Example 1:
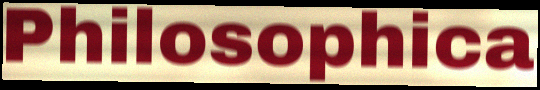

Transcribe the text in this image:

Philosophica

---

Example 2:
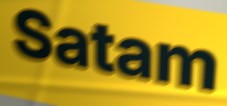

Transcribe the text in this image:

Satam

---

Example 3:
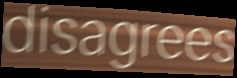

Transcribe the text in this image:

disagrees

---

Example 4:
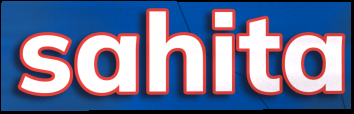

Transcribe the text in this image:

sahita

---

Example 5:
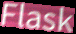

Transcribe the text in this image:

Flask